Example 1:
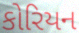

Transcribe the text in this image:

કોરિયન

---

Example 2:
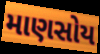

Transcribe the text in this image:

માણસોય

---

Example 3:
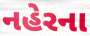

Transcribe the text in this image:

નહેરના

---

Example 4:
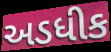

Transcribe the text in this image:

અડધીક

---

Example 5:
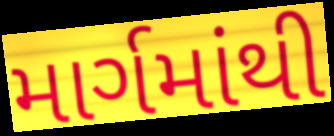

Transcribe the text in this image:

માર્ગમાંથી